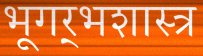
भूगर्भशास्त्र